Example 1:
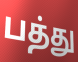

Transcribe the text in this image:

பத்து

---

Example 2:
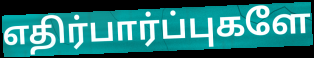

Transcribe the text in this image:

எதிர்பார்ப்புகளே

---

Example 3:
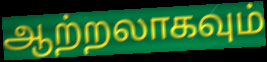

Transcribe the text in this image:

ஆற்றலாகவும்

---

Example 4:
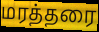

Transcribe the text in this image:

மரத்தரை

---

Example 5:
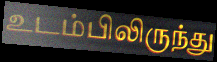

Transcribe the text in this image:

உடம்பிலிருந்து